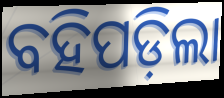
ବହିପଡ଼ିଲା